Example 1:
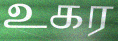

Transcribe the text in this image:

உகர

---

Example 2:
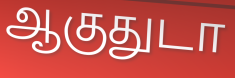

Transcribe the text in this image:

ஆகுதுடா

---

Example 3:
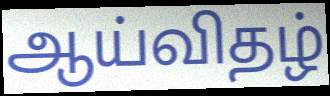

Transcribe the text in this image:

ஆய்விதழ்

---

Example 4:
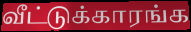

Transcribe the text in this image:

வீட்டுக்காரங்க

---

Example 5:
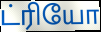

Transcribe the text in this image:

ட்ரியோ